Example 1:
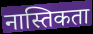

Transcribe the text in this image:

नास्तिकता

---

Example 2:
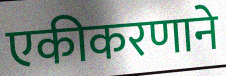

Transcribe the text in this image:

एकीकरणाने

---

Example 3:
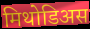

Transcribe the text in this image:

मिथोडिअस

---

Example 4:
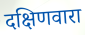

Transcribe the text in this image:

दक्षिणवारा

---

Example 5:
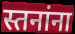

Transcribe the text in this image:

स्तनांना